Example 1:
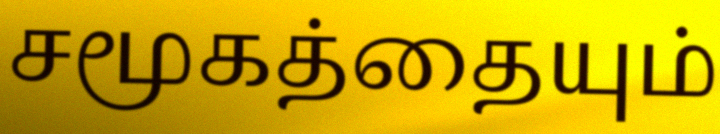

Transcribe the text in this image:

சமூகத்தையும்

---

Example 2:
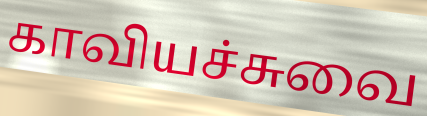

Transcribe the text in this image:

காவியச்சுவை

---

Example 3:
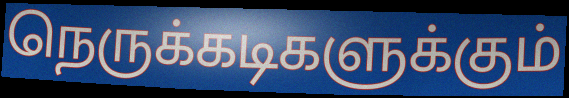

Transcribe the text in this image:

நெருக்கடிகளுக்கும்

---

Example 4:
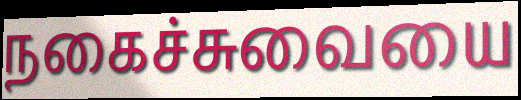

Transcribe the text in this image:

நகைச்சுவையை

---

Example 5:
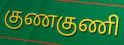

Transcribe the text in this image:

குணகுணி